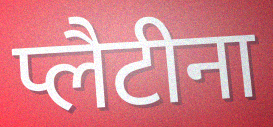
प्लैटीना